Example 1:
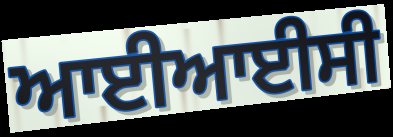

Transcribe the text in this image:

ਆਈਆਈਸੀ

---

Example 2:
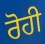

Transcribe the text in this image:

ਰੋਹੀ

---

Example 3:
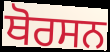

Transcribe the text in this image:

ਥੋਰਸਨ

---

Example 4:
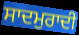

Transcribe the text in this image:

ਸਾਦਮੁਰਾਦੀ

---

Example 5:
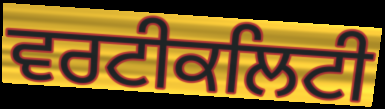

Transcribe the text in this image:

ਵਰਟੀਕਲਿਟੀ